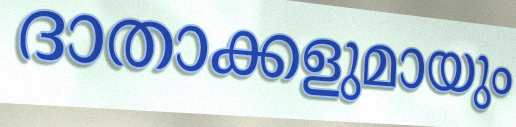
ദാതാക്കളുമായും